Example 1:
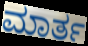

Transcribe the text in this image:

ಮಾರ್ತ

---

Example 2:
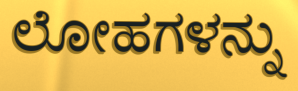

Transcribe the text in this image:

ಲೋಹಗಳನ್ನು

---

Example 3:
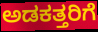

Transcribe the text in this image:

ಅಡಕತ್ತರಿಗೆ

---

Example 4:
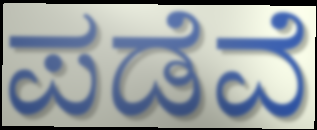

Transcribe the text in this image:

ಪಡೆವೆ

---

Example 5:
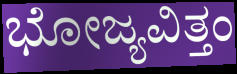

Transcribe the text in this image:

ಭೋಜ್ಯವಿತ್ತಂ